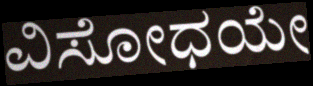
ವಿಸೋಧಯೇ